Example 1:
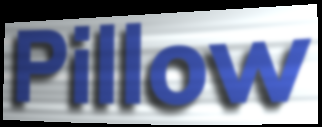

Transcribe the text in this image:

Pillow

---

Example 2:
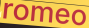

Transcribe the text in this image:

romeo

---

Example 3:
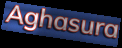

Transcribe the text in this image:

Aghasura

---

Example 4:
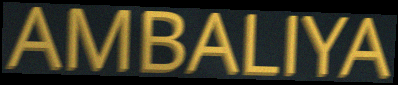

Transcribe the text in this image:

AMBALIYA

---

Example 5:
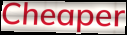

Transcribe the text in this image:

Cheaper